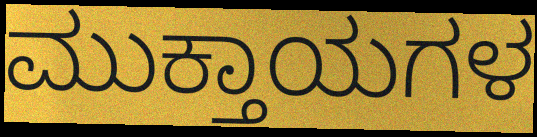
ಮುಕ್ತಾಯಗಳ